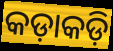
କଡ଼ାକଡ଼ି